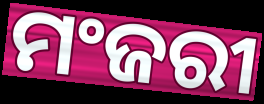
ମଂଜରୀ